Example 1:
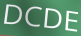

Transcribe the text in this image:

DCDE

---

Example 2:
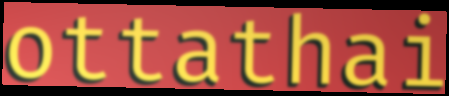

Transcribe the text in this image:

ottathai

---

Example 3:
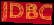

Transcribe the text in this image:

JDBC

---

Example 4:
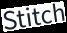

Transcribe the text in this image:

Stitch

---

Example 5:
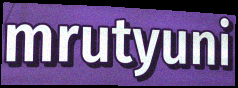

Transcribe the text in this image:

mrutyuni